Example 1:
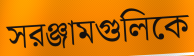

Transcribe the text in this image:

সরঞ্জামগুলিকে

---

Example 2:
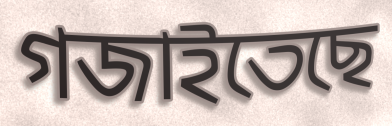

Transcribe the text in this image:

গজাইতেছে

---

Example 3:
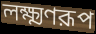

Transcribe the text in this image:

লক্ষ্মণরূপ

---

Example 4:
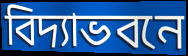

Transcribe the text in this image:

বিদ্যাভবনে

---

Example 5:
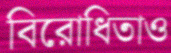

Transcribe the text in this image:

বিরোধিতাও